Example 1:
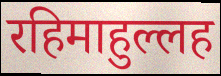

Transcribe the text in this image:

रहिमाहुल्लह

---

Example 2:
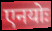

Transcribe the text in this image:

एनयोः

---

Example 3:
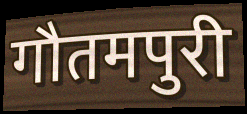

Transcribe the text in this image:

गौतमपुरी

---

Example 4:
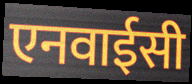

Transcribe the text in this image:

एनवाईसी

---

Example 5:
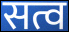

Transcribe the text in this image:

सत्व